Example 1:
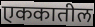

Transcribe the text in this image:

एककातील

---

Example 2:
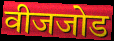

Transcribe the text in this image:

वीजजोड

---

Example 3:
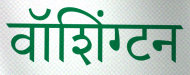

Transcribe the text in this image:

वॉशिंग्टन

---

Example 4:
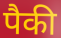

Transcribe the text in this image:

पैकी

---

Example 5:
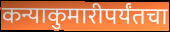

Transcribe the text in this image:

कन्याकुमारीपर्यंतचा